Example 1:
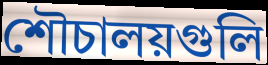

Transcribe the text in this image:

শৌচালয়গুলি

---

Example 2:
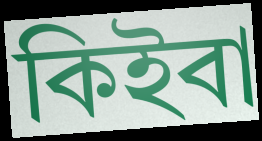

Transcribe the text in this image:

কিইবা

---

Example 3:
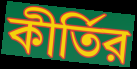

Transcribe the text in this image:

কীর্তির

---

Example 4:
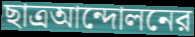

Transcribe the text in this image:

ছাত্রআন্দোলনের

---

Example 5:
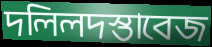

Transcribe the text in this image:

দলিলদস্তাবেজ